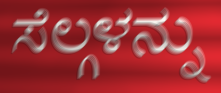
ಸೆಲ್ಗಳನ್ನು